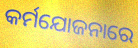
କର୍ମଯୋଜନାରେ